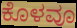
ಕೊಳವೂ